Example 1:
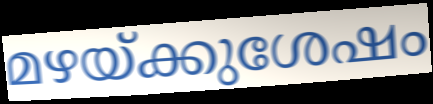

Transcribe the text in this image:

മഴയ്ക്കുശേഷം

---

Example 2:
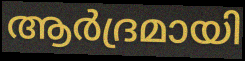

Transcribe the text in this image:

ആർദ്രമായി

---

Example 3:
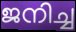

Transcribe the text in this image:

ജനിച്ച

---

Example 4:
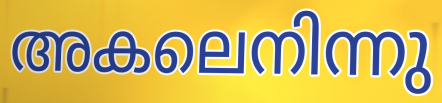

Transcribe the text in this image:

അകലെനിന്നു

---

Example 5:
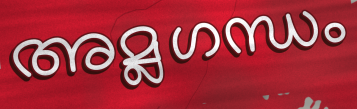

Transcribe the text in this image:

അമ്ലഗന്ധം